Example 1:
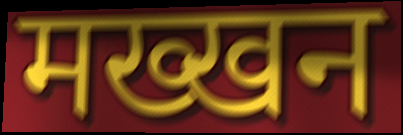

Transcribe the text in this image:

मख्खन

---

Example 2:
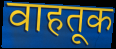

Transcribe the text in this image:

वाहतूक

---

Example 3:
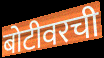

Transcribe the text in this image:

बोटीवरची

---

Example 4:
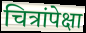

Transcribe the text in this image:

चित्रांपेक्षा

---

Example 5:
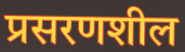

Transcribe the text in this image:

प्रसरणशील